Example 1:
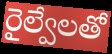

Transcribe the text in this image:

రైల్వేలతో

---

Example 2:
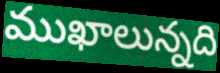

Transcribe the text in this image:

ముఖాలున్నది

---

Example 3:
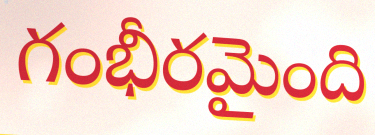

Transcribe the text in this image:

గంభీరమైంది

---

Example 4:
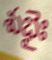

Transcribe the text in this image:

శుభైః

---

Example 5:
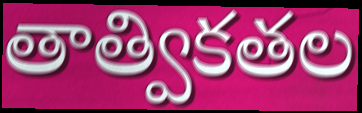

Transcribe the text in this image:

తాత్వికతల